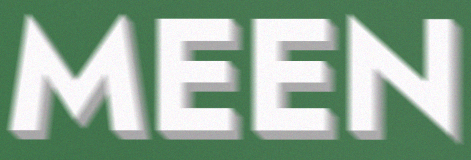
MEEN